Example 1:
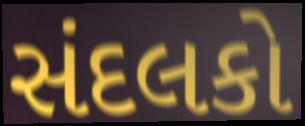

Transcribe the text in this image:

સંદલકો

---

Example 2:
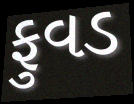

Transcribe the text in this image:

ફુવડ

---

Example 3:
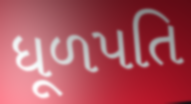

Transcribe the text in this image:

ધૂળપતિ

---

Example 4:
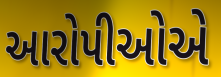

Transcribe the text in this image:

આરોપીઓએ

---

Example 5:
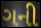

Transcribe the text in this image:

ગની